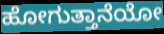
ಹೋಗುತ್ತಾನೆಯೋ